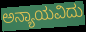
ಅನ್ಯಾಯವಿದು